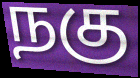
நகு